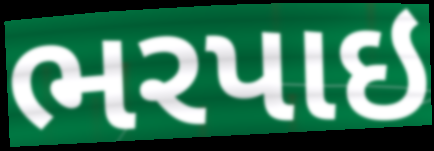
ભરપાઇ